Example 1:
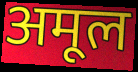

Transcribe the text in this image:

अमूल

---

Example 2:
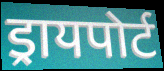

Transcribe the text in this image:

ड्रायपोर्ट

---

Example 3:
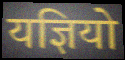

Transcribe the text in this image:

यज्ञियो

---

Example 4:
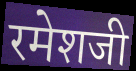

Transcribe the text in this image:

रमेशजी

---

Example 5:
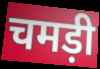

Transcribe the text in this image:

चमड़ी